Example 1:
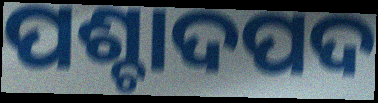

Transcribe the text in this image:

ପଶ୍ଚାଦପଦ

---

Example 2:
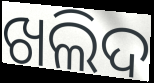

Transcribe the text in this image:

ଖଲିଦ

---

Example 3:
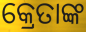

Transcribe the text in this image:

କ୍ରେତାଙ୍କ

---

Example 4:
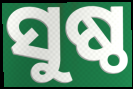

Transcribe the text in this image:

ସୁଷ୍ଠ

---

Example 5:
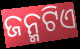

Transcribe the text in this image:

ଜନ୍ମଟିଏ